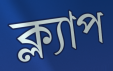
ক্ল্যাপ